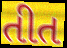
તીત